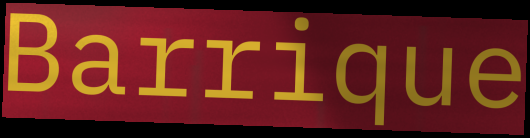
Barrique